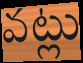
వట్లు